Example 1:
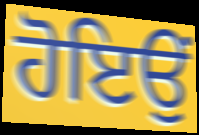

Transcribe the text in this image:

ਹੋਇਉਂ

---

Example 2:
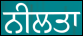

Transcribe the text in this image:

ਨੀਲਤਾ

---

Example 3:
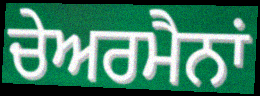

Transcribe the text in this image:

ਚੇਅਰਮੈਨਾਂ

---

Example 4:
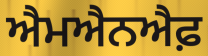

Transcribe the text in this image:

ਐਮਐਨਐਫ਼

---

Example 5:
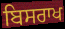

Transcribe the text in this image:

ਬਿਸਰਾਖ